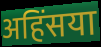
अहिंसया